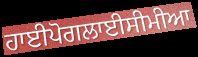
ਹਾਈਪੋਗਲਾਈਸੀਮੀਆ